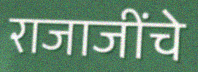
राजाजींचे